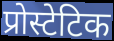
प्रोस्टेटिक